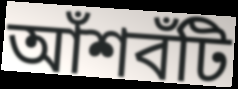
আঁশবঁটি